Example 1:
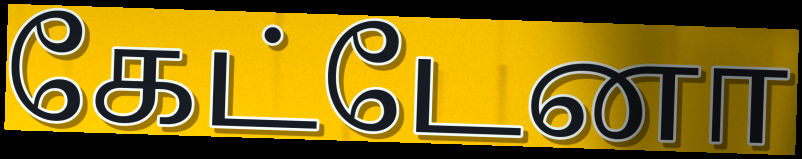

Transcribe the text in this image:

கேட்டேனா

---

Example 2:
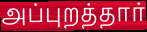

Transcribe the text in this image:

அப்புறத்தார்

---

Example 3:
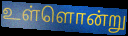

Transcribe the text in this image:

உள்ளொன்று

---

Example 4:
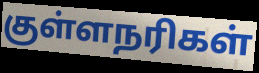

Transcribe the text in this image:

குள்ளநரிகள்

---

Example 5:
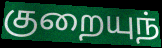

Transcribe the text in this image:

குறையுந்